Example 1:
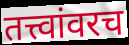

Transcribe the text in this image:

तत्त्वांवरच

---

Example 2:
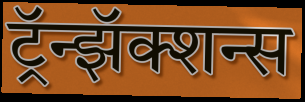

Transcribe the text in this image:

ट्रॅन्झॅक्शन्स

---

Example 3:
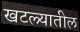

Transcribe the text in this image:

खटल्यातील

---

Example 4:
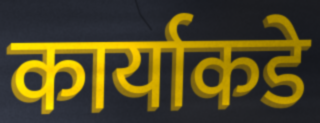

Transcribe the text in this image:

कार्याकडे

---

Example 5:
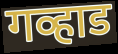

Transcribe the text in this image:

गव्हाड